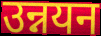
उन्नयन